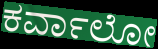
ಕರ್ವಾಲೋ